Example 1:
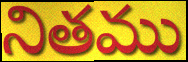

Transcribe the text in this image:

నితము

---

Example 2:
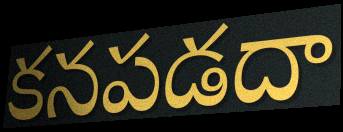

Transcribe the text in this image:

కనపడదా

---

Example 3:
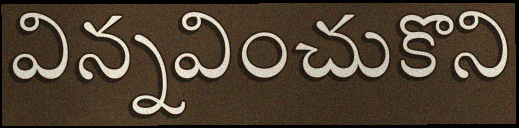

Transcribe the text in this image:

విన్నవించుకొని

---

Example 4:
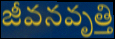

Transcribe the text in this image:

జీవనవృత్తి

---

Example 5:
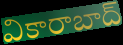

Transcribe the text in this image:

వికారాబాద్